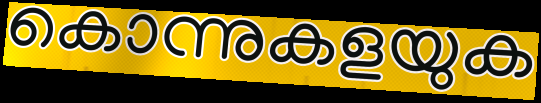
കൊന്നുകളയുക